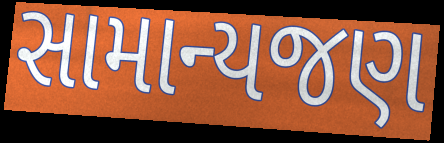
સામાન્યજણ